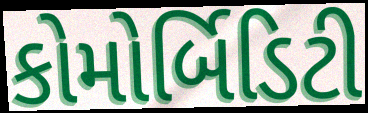
કોમોર્બિડિટી